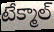
టేక్మాల్